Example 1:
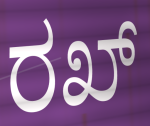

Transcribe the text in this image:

ರಖ್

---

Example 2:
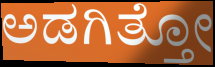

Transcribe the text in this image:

ಅಡಗಿತ್ತೋ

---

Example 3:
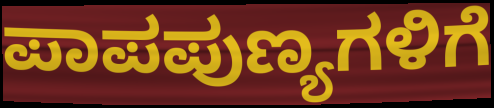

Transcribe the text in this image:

ಪಾಪಪುಣ್ಯಗಳಿಗೆ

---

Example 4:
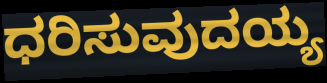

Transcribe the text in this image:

ಧರಿಸುವುದಯ್ಯ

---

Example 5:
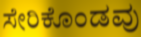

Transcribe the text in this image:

ಸೇರಿಕೊಂಡವು